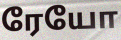
ரேயோ